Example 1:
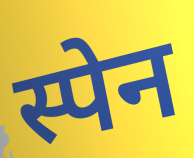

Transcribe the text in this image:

स्पेन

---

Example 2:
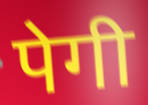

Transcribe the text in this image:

पेगी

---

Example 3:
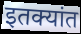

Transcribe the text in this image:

इतक्यांत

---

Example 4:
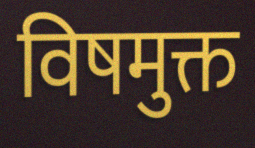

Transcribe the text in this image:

विषमुक्त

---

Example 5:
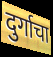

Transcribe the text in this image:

दुर्गाचा